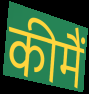
कीमैं